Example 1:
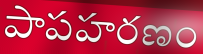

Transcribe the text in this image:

పాపహరణం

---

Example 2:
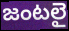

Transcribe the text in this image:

జంటలై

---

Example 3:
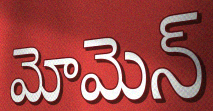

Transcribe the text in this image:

మోమెన్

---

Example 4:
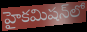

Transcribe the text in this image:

హైకమిషన్‌లో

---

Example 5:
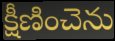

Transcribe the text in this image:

క్షీణించెను